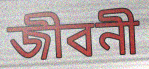
জীবনী